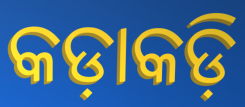
କଡ଼ାକଡ଼ି